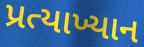
પ્રત્યાખ્યાન